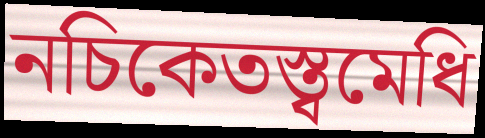
নচিকেতস্ত্বমেধি